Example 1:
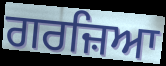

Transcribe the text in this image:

ਗਰਜ਼ਿਆ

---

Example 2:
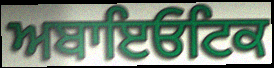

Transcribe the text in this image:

ਅਬਾਇਓਟਿਕ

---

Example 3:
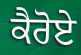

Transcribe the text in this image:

ਕੈਰੋਏ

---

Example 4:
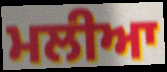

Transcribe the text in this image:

ਮਲੀਆ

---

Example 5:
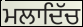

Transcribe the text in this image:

ਮਲਾਦਿੱਚ